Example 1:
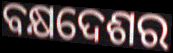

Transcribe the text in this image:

ବକ୍ଷଦେଶର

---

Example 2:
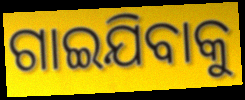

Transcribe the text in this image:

ଗାଇଯିବାକୁ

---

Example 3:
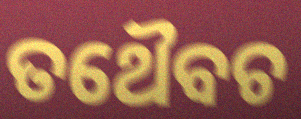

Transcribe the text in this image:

ତଥୈବଚ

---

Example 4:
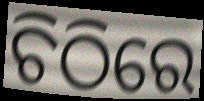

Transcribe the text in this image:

ଚିଠିରେ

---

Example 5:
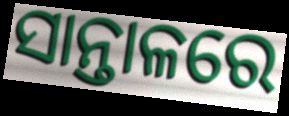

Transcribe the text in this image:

ସାନ୍ତାଳରେ